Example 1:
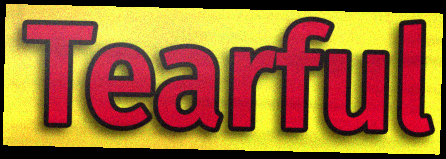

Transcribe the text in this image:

Tearful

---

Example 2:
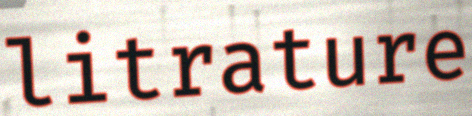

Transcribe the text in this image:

litrature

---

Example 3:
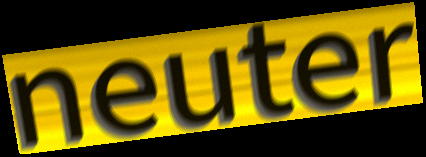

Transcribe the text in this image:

neuter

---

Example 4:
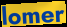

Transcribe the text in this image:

lomer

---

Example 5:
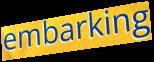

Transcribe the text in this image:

embarking